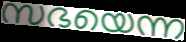
സഭയെന്ന